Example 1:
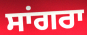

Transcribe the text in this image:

ਸਾਂਗਰਾ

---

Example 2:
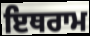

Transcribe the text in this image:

ਇਥਰਾਮ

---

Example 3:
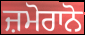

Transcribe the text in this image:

ਜ਼ਮੋਰਾਨੋ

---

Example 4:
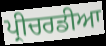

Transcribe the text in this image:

ਪ੍ਰੀਚਰਡੀਆ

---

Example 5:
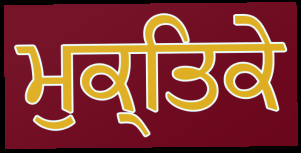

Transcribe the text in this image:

ਮੁਕ੍ਤਿਕੇ